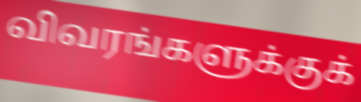
விவரங்களுக்குக்